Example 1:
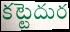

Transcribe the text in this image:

కట్టెదుర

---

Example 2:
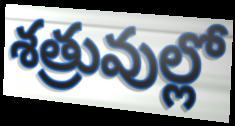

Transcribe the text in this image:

శత్రువుల్లో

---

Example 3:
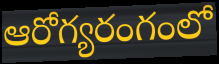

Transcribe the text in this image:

ఆరోగ్యరంగంలో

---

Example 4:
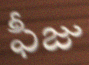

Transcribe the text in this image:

ఫీజు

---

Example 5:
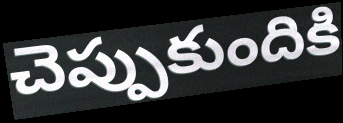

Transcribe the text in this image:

చెప్పుకుందికి